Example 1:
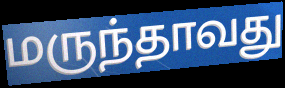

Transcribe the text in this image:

மருந்தாவது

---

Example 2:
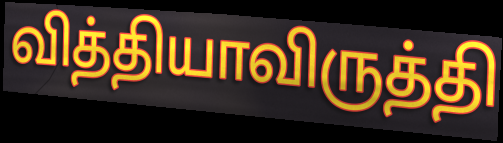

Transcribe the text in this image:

வித்தியாவிருத்தி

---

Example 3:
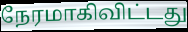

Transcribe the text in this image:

நேரமாகிவிட்டது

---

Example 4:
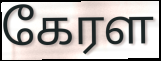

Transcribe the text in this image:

கேரள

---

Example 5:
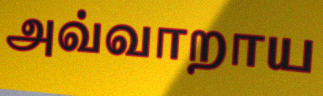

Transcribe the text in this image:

அவ்வாறாய